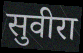
सुवीरा